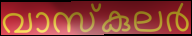
വാസ്കുലർ